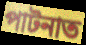
পাটনাত